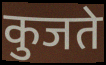
कुजते